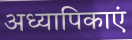
अध्यापिकाएं